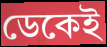
ডেকেই